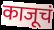
काजूचं